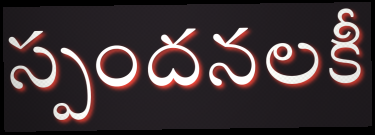
స్పందనలకీ